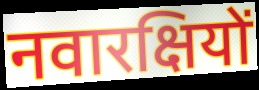
नवारक्षियों